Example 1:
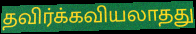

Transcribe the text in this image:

தவிர்க்கவியலாதது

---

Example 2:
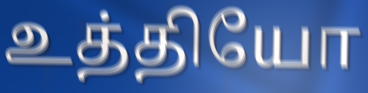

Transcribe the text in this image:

உத்தியோ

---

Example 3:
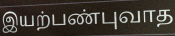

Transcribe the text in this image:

இயற்பண்புவாத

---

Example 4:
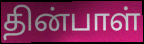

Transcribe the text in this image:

தின்பாள்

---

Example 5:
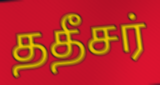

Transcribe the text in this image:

ததீசர்